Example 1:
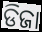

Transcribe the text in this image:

ଡିଜା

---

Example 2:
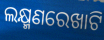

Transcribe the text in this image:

ଲକ୍ଷ୍ମଣରେଖାଟି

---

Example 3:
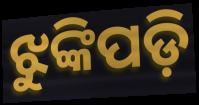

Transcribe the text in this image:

ଝୁଙ୍କିପଡ଼ି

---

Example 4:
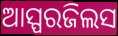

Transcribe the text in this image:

ଆସ୍ପରଜିଲସ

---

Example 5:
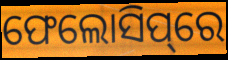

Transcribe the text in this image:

ଫେଲୋସିପ୍‌ରେ